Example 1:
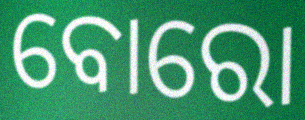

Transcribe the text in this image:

ବୋରୋ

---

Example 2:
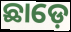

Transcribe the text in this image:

ଛାଡ଼େ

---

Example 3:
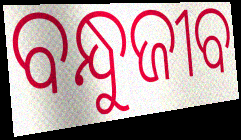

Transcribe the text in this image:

ବନ୍ଧୁଜୀବ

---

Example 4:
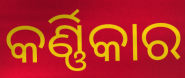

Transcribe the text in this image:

କର୍ଣ୍ଣିକାର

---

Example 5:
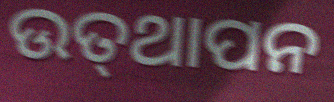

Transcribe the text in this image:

ଉତ୍‌ଥାପନ